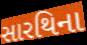
સારથિના